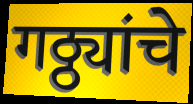
गठ्ठ्यांचे